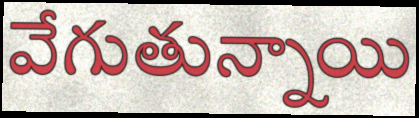
వేగుతున్నాయి